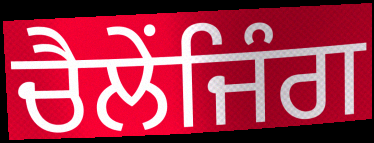
ਚੈਲੇਂਜਿੰਗ